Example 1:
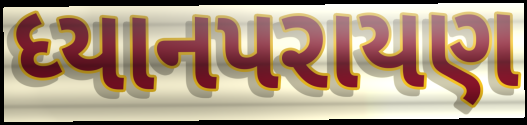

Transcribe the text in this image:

ધ્યાનપરાયણ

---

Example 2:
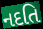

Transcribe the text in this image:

નદતિ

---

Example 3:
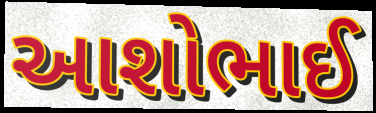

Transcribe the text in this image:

આશોભાઈ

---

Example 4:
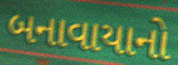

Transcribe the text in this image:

બનાવાયાનો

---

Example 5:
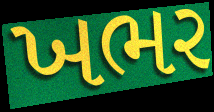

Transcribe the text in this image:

ખભર